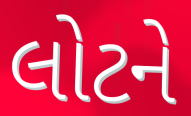
લોટને